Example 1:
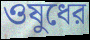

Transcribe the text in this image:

ওষুধের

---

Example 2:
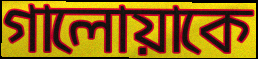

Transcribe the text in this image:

গালোয়াকে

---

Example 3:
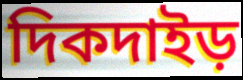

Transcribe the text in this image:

দিকদাইড়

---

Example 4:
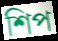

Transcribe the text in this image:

শিপ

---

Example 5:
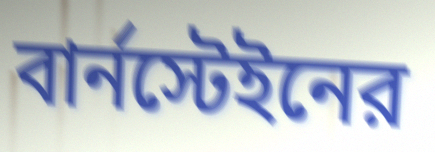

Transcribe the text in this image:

বার্নস্টেইনের